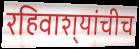
रहिवाश्यांचीच